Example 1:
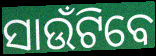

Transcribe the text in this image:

ସାଉଁଟିବେ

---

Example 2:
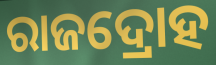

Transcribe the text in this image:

ରାଜଦ୍ରୋହ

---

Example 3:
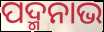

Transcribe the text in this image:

ପଦ୍ମନାଭ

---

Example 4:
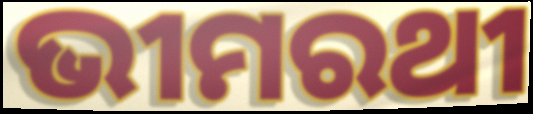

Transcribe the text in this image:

ଭୀମରଥୀ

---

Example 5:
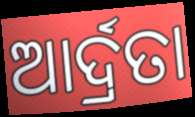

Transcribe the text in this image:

ଆର୍ଦ୍ରତା